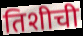
तिशीची